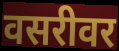
वसरीवर